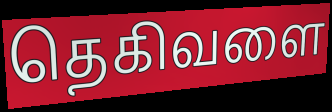
தெகிவளை